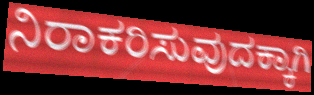
ನಿರಾಕರಿಸುವುದಕ್ಕಾಗಿ